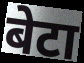
बेटा